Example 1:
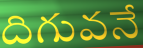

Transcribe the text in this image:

దిగువనే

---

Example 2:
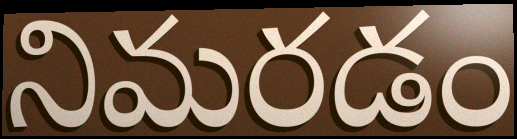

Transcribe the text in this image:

నిమరడం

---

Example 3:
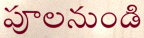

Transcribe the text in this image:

పూలనుండి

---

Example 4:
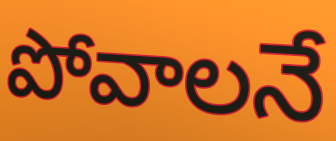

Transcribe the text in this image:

పోవాలనే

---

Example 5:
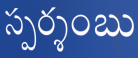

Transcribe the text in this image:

స్పర్శంబు